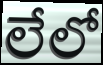
లేలో